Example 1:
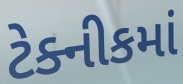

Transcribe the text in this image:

ટેક્નીકમાં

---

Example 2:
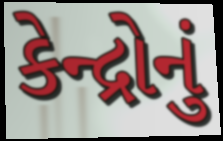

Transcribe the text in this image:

કેન્દ્રોનું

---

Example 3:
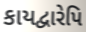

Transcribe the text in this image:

કાયદ્વારેપિ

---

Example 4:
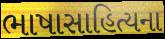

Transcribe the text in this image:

ભાષાસાહિત્યના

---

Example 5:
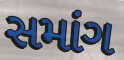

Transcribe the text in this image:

સમાંગ